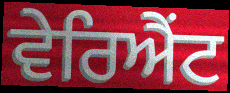
ਵੇਰਿਐਂਟ